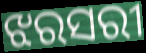
ଝରସରୀ